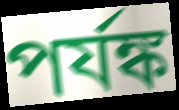
পর্যঙ্ক